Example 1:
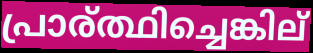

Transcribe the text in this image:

പ്രാര്ത്ഥിച്ചെങ്കില്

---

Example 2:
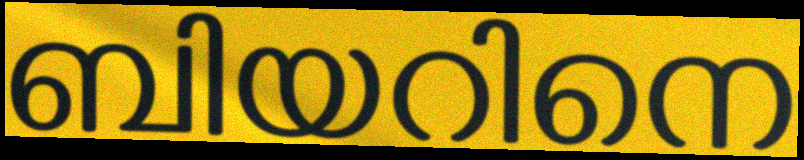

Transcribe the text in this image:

ബിയറിനെ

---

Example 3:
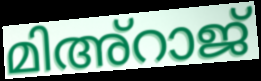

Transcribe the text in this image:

മിഅ്റാജ്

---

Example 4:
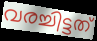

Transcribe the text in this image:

വരച്ചിട്ടത്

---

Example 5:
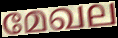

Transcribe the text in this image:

മേഖല